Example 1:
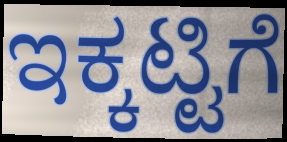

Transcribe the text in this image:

ಇಕ್ಕಟ್ಟಿಗೆ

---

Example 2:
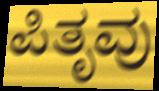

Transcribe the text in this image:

ಪಿತೃವು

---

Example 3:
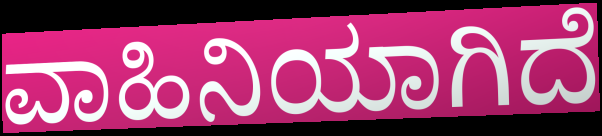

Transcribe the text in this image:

ವಾಹಿನಿಯಾಗಿದೆ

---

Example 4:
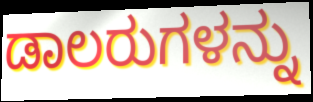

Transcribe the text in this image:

ಡಾಲರುಗಳನ್ನು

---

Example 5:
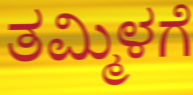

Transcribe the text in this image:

ತಮ್ಮಿಳಗೆ